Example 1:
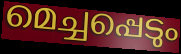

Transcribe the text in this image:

മെച്ചപ്പെടും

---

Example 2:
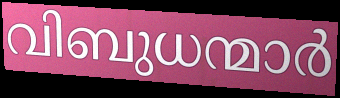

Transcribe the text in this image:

വിബുധന്മാർ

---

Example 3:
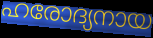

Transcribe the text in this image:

ഹരോദ്യനായ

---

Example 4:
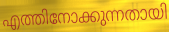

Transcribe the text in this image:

എത്തിനോക്കുന്നതായി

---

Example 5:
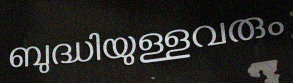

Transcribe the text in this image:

ബുദ്ധിയുള്ളവരും